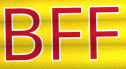
BFF